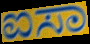
ಐಸಾ